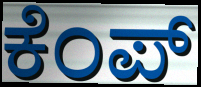
ಕೆಂಪ್